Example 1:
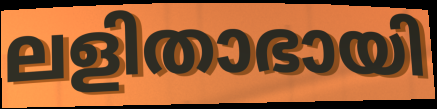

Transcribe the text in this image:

ലളിതാഭായി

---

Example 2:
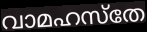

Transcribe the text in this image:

വാമഹസ്തേ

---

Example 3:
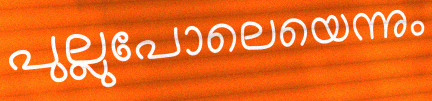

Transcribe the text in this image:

പുല്ലുപോലെയെന്നും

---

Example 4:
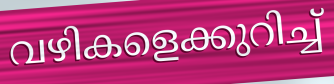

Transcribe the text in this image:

വഴികളെക്കുറിച്ച്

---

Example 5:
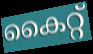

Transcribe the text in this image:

കൈറ്റ്